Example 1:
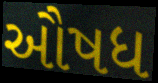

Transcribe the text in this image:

ઔષધ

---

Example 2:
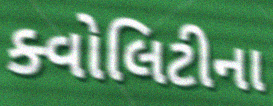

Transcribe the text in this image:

ક્વોલિટીના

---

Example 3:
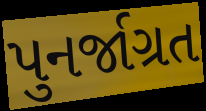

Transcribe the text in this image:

પુનર્જાગ્રત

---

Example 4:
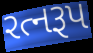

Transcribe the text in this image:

રત્નરૂપ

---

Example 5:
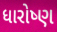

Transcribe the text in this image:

ધારોષ્ણ